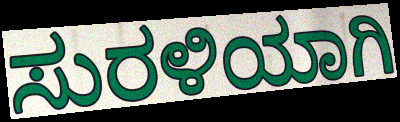
ಸುರಳಿಯಾಗಿ